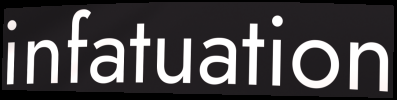
infatuation